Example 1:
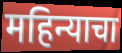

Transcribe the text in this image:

महिन्याचा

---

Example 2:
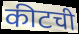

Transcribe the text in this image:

कीटची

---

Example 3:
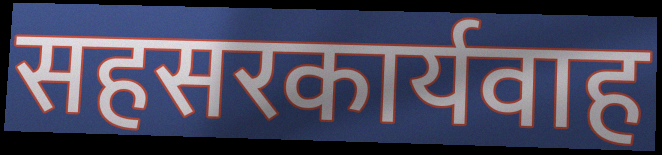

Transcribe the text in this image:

सहसरकार्यवाह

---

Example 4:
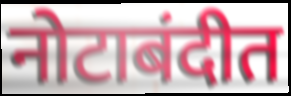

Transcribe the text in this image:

नोटाबंदीत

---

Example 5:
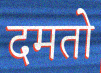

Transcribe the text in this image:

दमतो